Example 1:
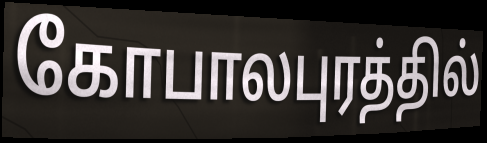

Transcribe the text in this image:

கோபாலபுரத்தில்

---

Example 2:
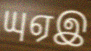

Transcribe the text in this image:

யுஏஇ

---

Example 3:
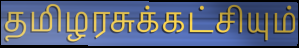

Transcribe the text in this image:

தமிழரசுக்கட்சியும்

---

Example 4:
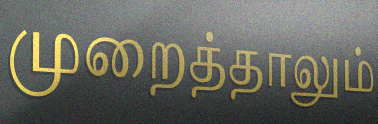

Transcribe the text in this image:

முறைத்தாலும்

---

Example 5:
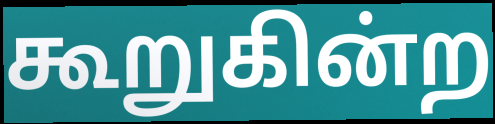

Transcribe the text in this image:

கூறுகின்ற